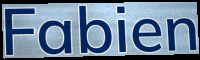
Fabien